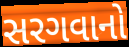
સરગવાનો